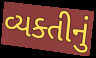
વ્યક્તીનું